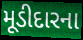
મૂડીદારના